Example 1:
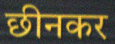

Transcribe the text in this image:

छीनकर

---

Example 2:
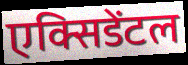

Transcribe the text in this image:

एक्सिडेंटल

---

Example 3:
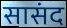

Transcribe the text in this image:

सासंद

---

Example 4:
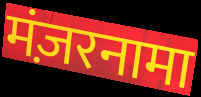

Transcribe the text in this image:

मंज़रनामा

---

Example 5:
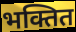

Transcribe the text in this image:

भक्तित